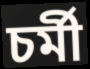
চর্মী